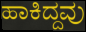
ಹಾಕಿದ್ದವು